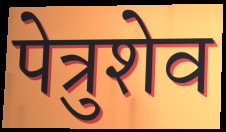
पेत्रुशेव